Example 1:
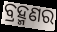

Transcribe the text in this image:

ବ୍ରହ୍ମଣର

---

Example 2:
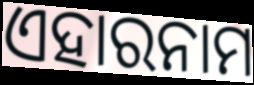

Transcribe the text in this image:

ଏହାରନାମ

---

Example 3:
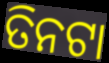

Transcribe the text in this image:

ତିନଟା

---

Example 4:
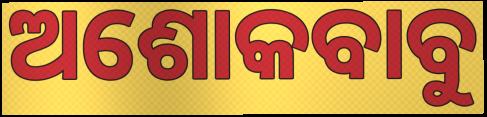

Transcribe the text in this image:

ଅଶୋକବାବୁ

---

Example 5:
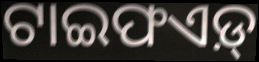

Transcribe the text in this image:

ଟାଇଫଏଡ଼୍